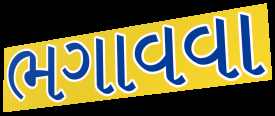
ભગાવવા